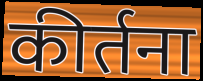
कीर्तना